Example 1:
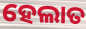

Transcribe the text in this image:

ହେଲାତ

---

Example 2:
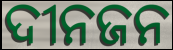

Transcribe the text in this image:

ଦୀନଜନ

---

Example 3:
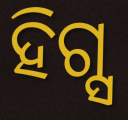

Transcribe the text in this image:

ହିଗ୍ସ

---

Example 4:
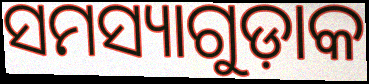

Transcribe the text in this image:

ସମସ୍ୟାଗୁଡ଼ାକ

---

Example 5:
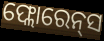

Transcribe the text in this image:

ଫ୍ଲୋରେନ୍‌ସ